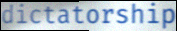
dictatorship